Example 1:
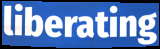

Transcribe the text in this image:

liberating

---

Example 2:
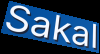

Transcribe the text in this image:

Sakal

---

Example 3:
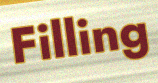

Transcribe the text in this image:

Filling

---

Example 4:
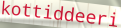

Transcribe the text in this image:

kottiddeeri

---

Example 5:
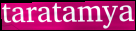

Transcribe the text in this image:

taratamya